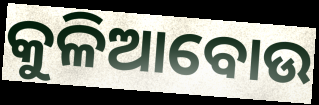
କୁଳିଆବୋଉ